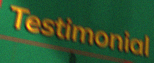
Testimonial